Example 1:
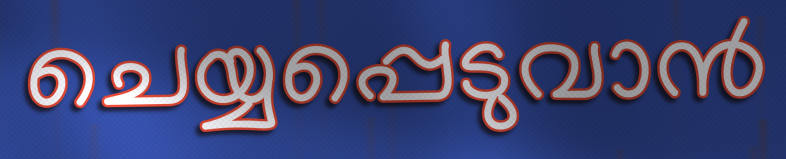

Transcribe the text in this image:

ചെയ്യപ്പെടുവാൻ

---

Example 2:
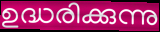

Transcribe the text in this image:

ഉദ്ധരിക്കുന്നു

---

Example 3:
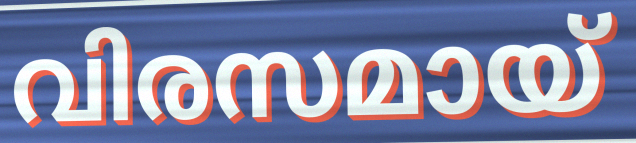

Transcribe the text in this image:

വിരസമായ്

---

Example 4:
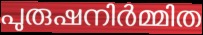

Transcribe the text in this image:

പുരുഷനിർമ്മിത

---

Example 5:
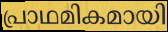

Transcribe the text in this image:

പ്രാഥമികമായി